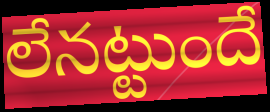
లేనట్టుందే